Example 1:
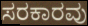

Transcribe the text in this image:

ಸರಕಾರವು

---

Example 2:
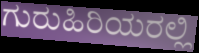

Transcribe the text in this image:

ಗುರುಹಿರಿಯರಲ್ಲಿ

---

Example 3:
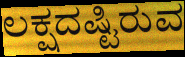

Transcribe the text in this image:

ಲಕ್ಷದಷ್ಟಿರುವ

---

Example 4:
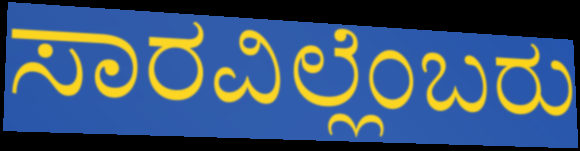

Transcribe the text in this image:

ಸಾರವಿಲ್ಲೆಂಬರು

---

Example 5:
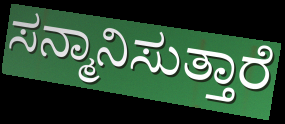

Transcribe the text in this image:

ಸನ್ಮಾನಿಸುತ್ತಾರೆ